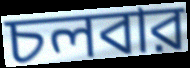
চলবার